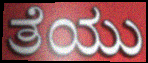
ತೆಯು